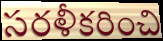
సరళీకరించి